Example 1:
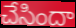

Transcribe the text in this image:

చేసిందా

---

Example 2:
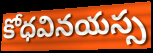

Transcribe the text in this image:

కోధవినయస్స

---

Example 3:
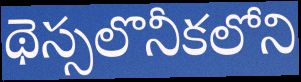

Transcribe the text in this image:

థెస్సలొనీకలోని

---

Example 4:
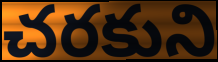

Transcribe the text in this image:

చరకుని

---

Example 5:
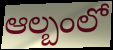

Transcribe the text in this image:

ఆల్బంలో